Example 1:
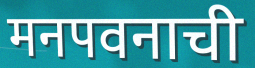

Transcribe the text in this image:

मनपवनाची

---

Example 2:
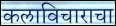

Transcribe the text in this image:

कलाविचाराचा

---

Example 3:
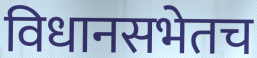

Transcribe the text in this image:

विधानसभेतच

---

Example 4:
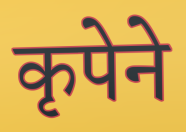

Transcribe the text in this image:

कृपेने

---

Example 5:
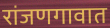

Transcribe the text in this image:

रांजणगावात